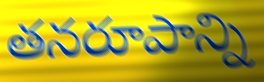
తనరూపాన్ని